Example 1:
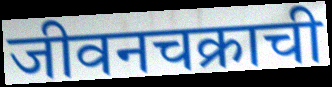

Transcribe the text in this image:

जीवनचक्राची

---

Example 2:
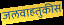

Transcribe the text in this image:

जलवाहतुकीस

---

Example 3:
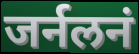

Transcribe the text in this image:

जर्नलनं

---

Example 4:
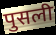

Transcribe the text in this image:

पुसली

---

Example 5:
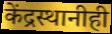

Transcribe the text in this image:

केंद्रस्थानीही